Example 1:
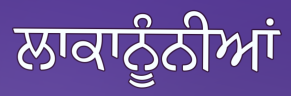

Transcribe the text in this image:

ਲਾਕਾਨੂੰਨੀਆਂ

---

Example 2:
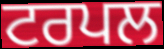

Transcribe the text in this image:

ਟਰਪਲ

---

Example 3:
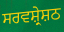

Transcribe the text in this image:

ਸਰਵਸ਼੍ਰੇਸ਼ਠ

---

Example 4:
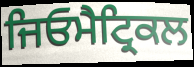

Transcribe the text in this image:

ਜਿਓਮੈਟ੍ਰਿਕਲ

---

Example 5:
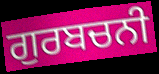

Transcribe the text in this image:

ਗੁਰਬਚਨੀ